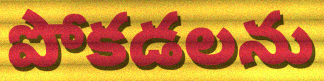
పోకడలను